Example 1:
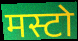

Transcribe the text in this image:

मस्टो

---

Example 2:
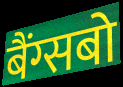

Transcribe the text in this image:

बैंग्सबो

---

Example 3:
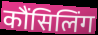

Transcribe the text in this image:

कौंसिलिंग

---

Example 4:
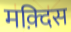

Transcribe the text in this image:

मक़्दिस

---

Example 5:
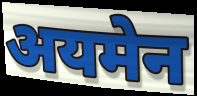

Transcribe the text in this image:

अयमेन